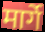
मार्गे